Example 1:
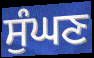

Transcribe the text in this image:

ਸੁੰਘਣ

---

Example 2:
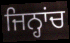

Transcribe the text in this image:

ਜਿਨ੍ਹਾਂਚ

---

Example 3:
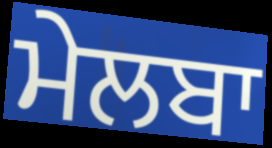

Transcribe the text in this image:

ਮੇਲਬਾ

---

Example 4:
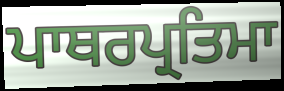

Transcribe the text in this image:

ਪਾਥਰਪ੍ਰਤਿਮਾ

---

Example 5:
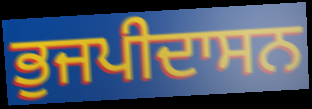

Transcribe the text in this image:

ਭੁਜਪੀਦਾਸਨ